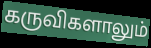
கருவிகளாலும்